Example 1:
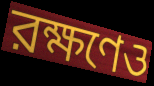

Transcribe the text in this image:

রক্ষণেও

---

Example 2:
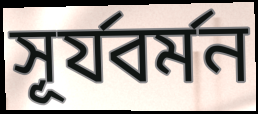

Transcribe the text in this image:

সূর্যবর্মন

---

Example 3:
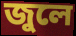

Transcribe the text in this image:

জুলে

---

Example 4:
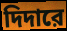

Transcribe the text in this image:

দিদারে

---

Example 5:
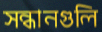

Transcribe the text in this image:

সন্ধানগুলি